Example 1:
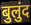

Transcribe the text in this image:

बुलुंद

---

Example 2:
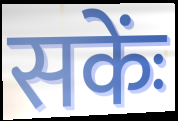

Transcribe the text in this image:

सकेंः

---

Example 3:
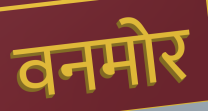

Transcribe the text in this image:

वनमोर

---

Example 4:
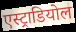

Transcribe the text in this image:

एस्ट्राडियोल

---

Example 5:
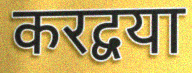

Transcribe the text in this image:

करद्वया